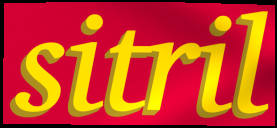
sitril